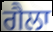
ਗੈਲਾ